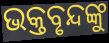
ଭକ୍ତବୃନ୍ଦଙ୍କୁ